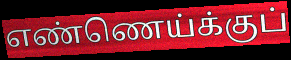
எண்ணெய்க்குப்